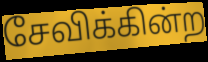
சேவிக்கின்ற